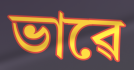
ভাৱে